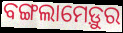
ବଙ୍ଗଲାମେଡ଼ୁର